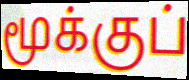
மூக்குப்